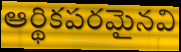
ఆర్థికపరమైనవి